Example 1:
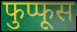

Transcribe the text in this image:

फुप्फूस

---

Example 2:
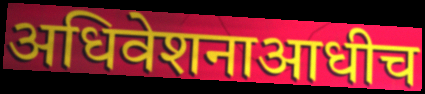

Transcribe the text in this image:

अधिवेशनाआधीच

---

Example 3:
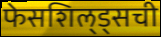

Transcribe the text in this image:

फेसशिल्ड्सची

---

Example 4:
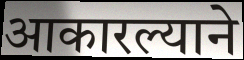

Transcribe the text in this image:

आकारल्याने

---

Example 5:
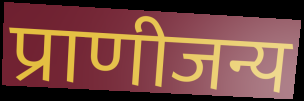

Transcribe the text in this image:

प्राणीजन्य